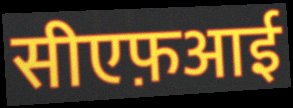
सीएफ़आई